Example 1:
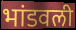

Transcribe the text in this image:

भांडवली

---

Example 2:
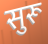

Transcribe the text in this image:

सुरू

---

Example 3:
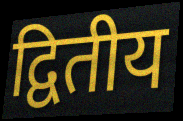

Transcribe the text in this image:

द्वितीय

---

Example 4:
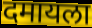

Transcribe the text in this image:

दमायला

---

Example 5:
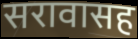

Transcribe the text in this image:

सरावासह